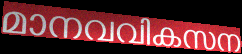
മാനവവികസന